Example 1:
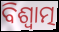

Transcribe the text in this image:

ବିଶ୍ୱାତ୍ମ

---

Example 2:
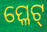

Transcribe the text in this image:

ପ୍ଳେଟ୍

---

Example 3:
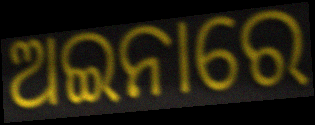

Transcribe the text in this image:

ଅଇନାରେ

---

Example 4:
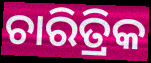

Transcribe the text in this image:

ଚାରିତ୍ରିକ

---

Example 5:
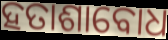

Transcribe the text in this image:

ହତାଶାବୋଧ